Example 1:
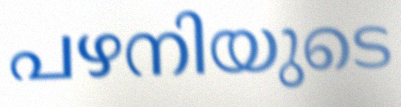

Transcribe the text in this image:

പഴനിയുടെ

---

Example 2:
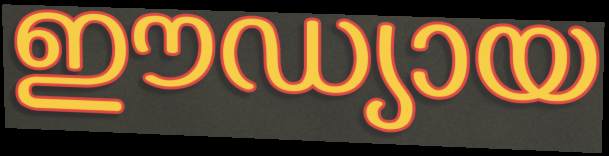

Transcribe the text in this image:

ഈഡ്യായ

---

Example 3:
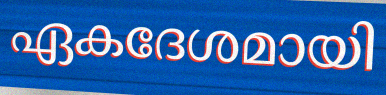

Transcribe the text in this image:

ഏകദേശമായി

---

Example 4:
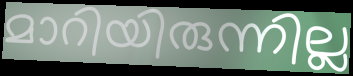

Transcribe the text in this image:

മാറിയിരുന്നില്ല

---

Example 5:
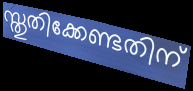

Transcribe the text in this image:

സ്തുതിക്കേണ്ടതിന്